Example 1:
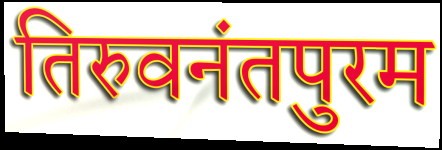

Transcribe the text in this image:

तिरुवनंतपुरम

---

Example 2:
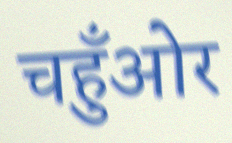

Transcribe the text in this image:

चहुँओर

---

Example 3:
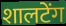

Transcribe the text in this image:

शालटेंग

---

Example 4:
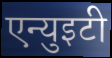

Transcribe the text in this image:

एन्युइटी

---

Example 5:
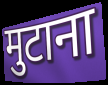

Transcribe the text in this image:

मुटाना